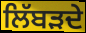
ਲਿੱਬੜਦੇ